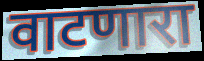
वाटणारा